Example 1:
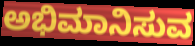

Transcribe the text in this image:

ಅಭಿಮಾನಿಸುವ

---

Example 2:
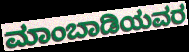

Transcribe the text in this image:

ಮಾಂಬಾಡಿಯವರ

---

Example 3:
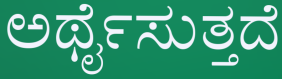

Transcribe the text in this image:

ಅರ್ಥೈಸುತ್ತದೆ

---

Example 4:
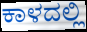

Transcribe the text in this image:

ಕಾಳದಲ್ಲಿ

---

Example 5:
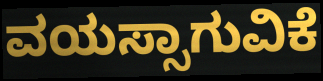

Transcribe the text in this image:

ವಯಸ್ಸಾಗುವಿಕೆ